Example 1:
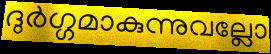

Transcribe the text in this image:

ദുർഗ്ഗമാകുന്നുവല്ലോ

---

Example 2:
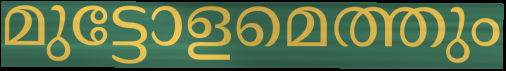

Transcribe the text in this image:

മുട്ടോളമെത്തും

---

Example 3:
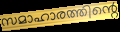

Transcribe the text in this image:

സമാഹാരത്തിന്റെ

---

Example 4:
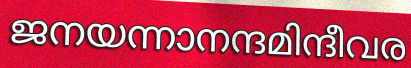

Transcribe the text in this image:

ജനയന്നാനന്ദമിന്ദീവര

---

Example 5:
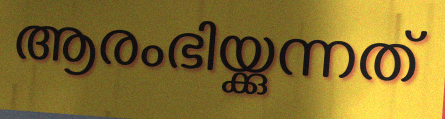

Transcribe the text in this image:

ആരംഭിയ്ക്കുന്നത്